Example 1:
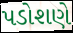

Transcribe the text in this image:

પડોશણે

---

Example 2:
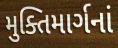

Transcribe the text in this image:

મુક્તિમાર્ગનાં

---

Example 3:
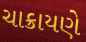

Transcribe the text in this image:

ચાક્રાયણે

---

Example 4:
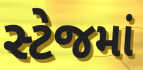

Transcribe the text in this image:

સ્ટેજમાં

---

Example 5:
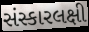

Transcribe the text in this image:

સંસ્કારલક્ષી